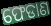
ଫେଡାଣ